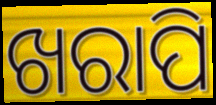
ଖରାପି